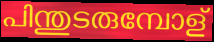
പിന്തുടരുമ്പോള്